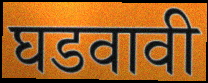
घडवावी